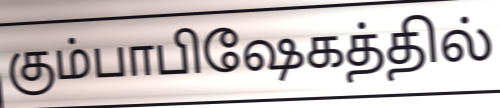
கும்பாபிஷேகத்தில்